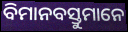
ବିମାନବସ୍ତୁମାନେ